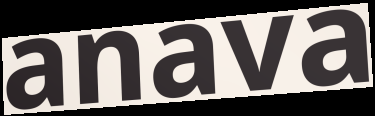
anava